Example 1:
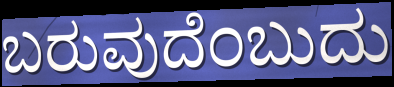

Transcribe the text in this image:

ಬರುವುದೆಂಬುದು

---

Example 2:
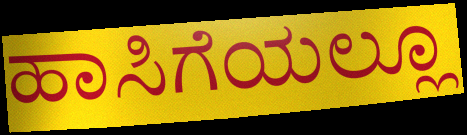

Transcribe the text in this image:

ಹಾಸಿಗೆಯಲ್ಲೂ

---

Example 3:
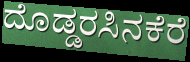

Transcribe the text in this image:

ದೊಡ್ಡರಸಿನಕೆರೆ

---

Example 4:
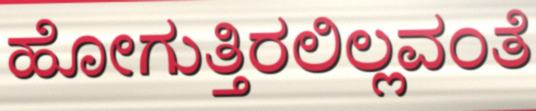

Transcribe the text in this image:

ಹೋಗುತ್ತಿರಲಿಲ್ಲವಂತೆ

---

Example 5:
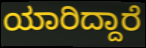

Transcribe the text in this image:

ಯಾರಿದ್ದಾರೆ